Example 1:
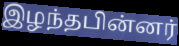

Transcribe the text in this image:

இழந்தபின்னர்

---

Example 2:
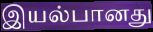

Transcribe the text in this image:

இயல்பானது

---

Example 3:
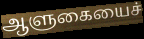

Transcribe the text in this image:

ஆளுகையைச்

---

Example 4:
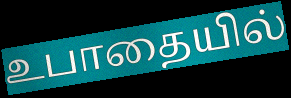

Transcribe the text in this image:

உபாதையில்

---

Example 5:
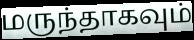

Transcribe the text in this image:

மருந்தாகவும்